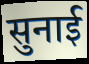
सुनाई